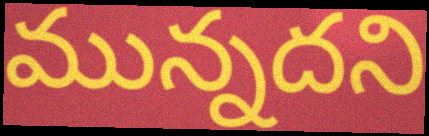
మున్నదని